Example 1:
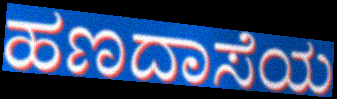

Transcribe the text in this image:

ಹಣದಾಸೆಯ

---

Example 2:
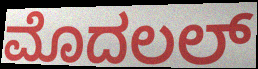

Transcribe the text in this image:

ಮೊದಲಲ್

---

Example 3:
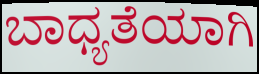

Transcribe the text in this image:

ಬಾಧ್ಯತೆಯಾಗಿ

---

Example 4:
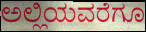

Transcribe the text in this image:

ಅಲ್ಲಿಯವರೆಗೂ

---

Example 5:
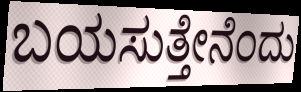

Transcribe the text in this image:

ಬಯಸುತ್ತೇನೆಂದು